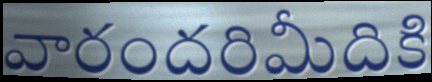
వారందరిమీదికి